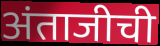
अंताजीची